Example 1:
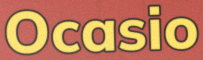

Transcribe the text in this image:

Ocasio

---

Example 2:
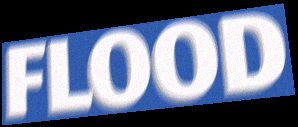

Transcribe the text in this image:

FLOOD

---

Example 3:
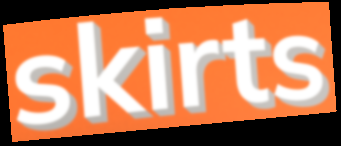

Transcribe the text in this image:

skirts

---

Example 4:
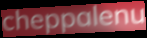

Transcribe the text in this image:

cheppalenu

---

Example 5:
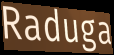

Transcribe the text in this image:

Raduga